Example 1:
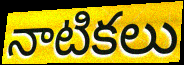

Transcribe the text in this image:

నాటికలు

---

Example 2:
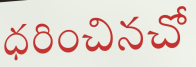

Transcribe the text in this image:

ధరించినచో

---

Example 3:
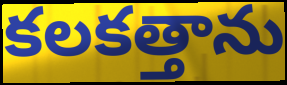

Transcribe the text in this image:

కలకత్తాను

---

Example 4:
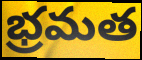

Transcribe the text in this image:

భ్రమత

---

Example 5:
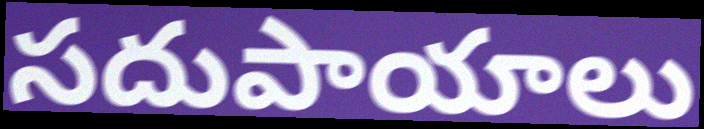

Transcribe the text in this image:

సదుపాయాలు